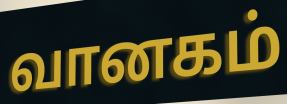
வானகம்